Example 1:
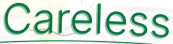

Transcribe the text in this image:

Careless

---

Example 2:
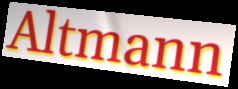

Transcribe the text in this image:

Altmann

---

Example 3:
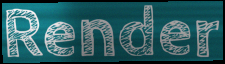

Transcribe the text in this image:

Render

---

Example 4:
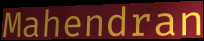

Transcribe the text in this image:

Mahendran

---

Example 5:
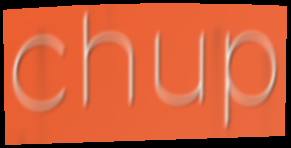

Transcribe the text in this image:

chup